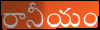
రానీయం